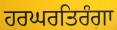
ਹਰਘਰਤਿਰੰਗਾ